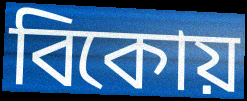
বিকোয়